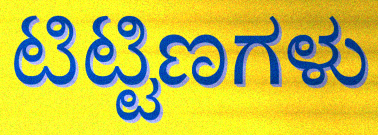
ಟಿಟ್ಟಿಣಗಳು